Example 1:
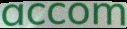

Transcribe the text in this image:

accom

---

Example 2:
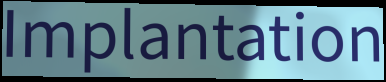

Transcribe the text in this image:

Implantation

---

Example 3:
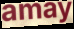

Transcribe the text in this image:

amay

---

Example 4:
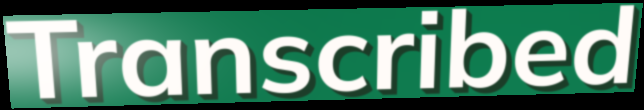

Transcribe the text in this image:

Transcribed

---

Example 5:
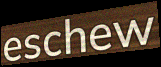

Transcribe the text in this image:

eschew